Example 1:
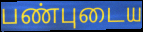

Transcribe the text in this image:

பண்புடைய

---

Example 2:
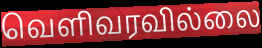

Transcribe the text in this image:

வெளிவரவில்லை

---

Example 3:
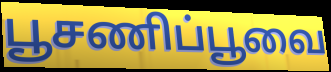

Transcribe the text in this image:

பூசணிப்பூவை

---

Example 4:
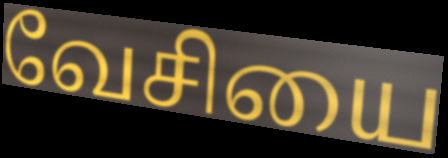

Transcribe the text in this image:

வேசியை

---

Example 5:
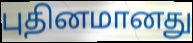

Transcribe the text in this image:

புதினமானது